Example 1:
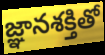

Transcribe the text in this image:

జ్ఞానశక్తితో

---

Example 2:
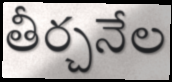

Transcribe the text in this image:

తీర్చనేల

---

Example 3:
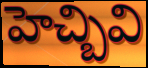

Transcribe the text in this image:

హెచ్బివి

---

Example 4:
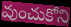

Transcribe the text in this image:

వుంచుకోని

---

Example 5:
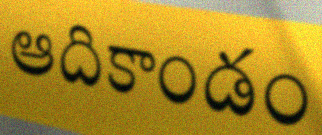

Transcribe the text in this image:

ఆదికాండం